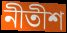
নীতীশ